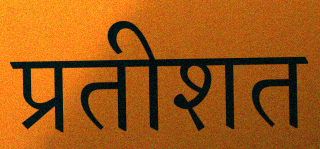
प्रतीशत